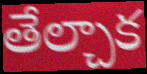
తేల్చాక